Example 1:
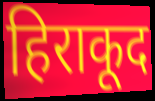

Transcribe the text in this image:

हिराकूद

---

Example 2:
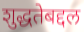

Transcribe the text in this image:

शुद्धतेबद्दल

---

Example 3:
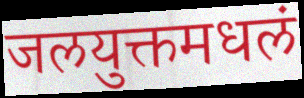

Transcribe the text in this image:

जलयुक्तमधलं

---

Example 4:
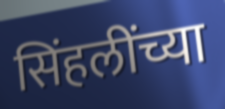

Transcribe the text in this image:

सिंहलींच्या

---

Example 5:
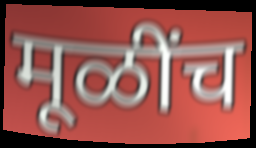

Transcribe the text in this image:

मूळींच